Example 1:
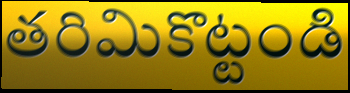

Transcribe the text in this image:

తరిమికొట్టండి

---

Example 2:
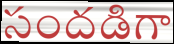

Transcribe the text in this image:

సందడిగా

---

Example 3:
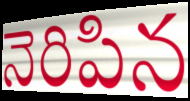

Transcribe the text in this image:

నెరిపిన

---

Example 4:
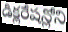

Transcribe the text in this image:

డిక్లరేషన్లోని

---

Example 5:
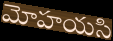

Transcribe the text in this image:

మోహయసి